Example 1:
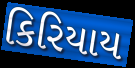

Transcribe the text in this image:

કિરિયાય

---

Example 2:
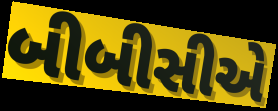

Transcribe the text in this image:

બીબીસીએ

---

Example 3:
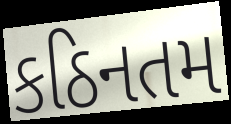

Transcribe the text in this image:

કઠિનતમ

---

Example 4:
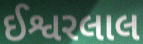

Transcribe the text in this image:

ઈશ્વરલાલ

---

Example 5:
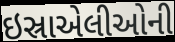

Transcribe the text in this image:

ઇસ્રાએલીઓની